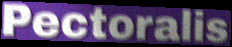
Pectoralis